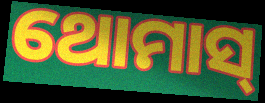
ଥୋମାସ୍